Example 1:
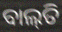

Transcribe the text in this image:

ବାଲ୍‌ତି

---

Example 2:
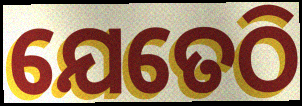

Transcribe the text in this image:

ଯେତେଠି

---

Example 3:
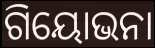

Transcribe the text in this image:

ଗିୟୋଭନା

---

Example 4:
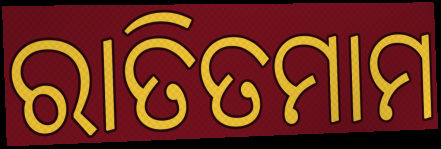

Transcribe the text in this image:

ରାତିତମାମ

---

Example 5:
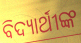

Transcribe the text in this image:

ବିଦ୍ୟାର୍ଥୀଙ୍କ